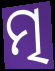
ତ୍ମ